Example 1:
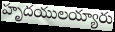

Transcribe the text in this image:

హృదయులయ్యారు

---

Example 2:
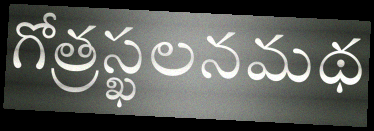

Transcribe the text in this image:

గోత్రస్ఖలనమథ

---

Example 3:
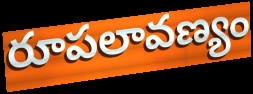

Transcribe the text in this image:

రూపలావణ్యం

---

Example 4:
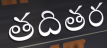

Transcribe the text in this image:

తదితర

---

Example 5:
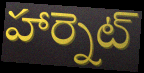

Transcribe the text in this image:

హార్నెట్